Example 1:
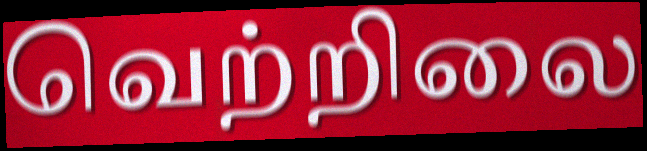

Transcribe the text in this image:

வெற்றிலை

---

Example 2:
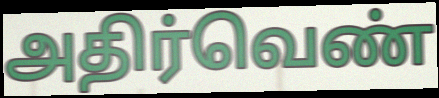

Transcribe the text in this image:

அதிர்வெண்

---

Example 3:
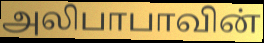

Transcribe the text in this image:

அலிபாபாவின்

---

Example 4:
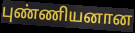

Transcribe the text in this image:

புண்ணியனான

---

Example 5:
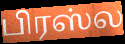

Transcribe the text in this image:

பிரஸ்ல